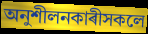
অনুশীলনকাৰীসকলে